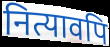
नित्यावपि